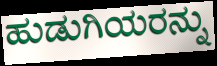
ಹುಡುಗಿಯರನ್ನು